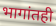
भागांतही